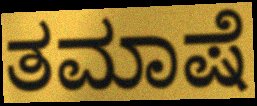
ತಮಾಷೆ